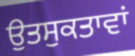
ਉਤਸੁਕਤਾਵਾਂ